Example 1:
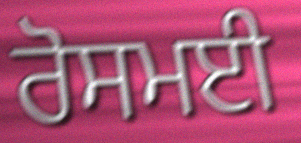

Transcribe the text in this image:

ਰੋਸਮਈ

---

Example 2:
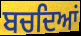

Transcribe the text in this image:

ਬਚਦਿਆਂ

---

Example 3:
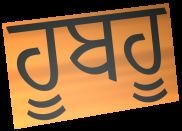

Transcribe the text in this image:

ਹੂਬਹੂ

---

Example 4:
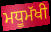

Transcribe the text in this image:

ਮਧੂਮੱਖੀ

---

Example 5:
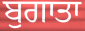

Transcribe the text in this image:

ਬੁਗਾਤਾ